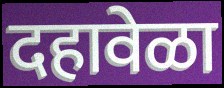
दहावेळा